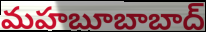
మహబూబాబాద్